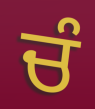
ਚੰ